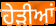
ਹੇੜੀਆਂ